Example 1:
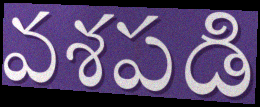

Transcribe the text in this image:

వశపడి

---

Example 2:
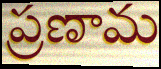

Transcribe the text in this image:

ప్రణామ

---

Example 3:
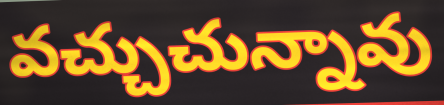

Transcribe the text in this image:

వచ్చుచున్నావు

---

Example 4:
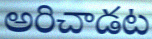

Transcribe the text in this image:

అరిచాడట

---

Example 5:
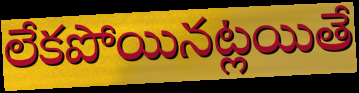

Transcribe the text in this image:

లేకపోయినట్లయితే